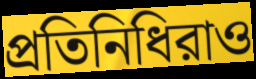
প্রতিনিধিরাও